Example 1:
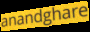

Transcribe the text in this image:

anandghare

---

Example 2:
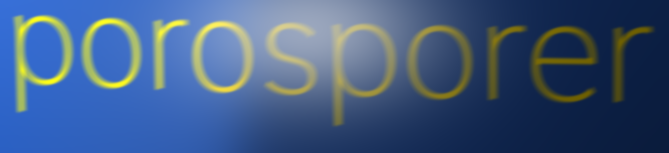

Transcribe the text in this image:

porosporer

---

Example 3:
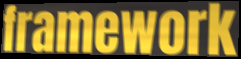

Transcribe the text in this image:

framework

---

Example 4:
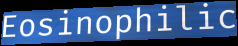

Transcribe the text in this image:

Eosinophilic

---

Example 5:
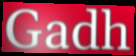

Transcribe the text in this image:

Gadh